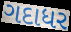
ગદાધર